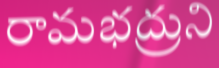
రామభద్రుని